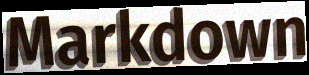
Markdown